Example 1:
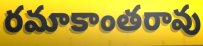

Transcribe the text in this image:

రమాకాంతరావు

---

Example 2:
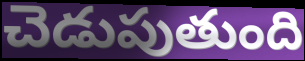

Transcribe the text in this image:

చెడుపుతుంది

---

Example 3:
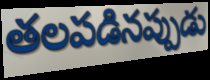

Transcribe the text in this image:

తలపడినప్పుడు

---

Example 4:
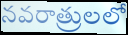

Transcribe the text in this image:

నవరాత్రులలో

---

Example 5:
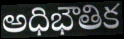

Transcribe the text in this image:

అధిభౌతిక